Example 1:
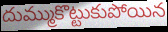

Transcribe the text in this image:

దుమ్ముకొట్టుకుపోయిన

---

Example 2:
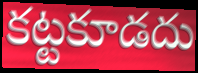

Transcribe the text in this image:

కట్టకూడదు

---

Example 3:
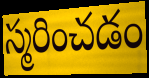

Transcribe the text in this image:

స్మరించడం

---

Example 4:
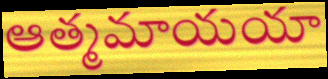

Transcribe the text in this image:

ఆత్మమాయయా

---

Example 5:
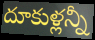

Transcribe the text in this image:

దూకుళ్లన్నీ